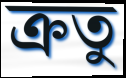
ক্রতু